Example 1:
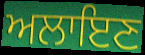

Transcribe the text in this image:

ਅਲਾਇਣ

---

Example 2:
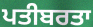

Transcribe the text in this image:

ਪਤੀਬਰਤਾ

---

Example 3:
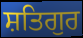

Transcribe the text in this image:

ਸ਼ਤਿਗੁਰ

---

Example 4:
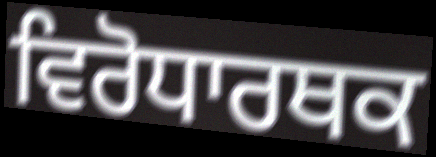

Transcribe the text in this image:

ਵਿਰੋਧਾਰਥਕ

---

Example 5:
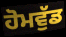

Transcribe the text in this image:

ਹੋਮਵੁੱਡ